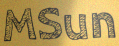
MSun